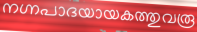
നഗ്നപാദയായകത്തുവരൂ